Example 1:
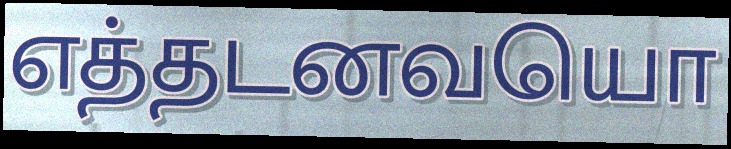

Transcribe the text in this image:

எத்தடனவயொ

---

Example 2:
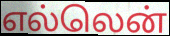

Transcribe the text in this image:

எல்லென்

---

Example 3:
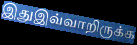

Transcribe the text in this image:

இதுஇவ்வாறிருக்க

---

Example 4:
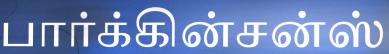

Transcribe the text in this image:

பார்க்கின்சன்ஸ்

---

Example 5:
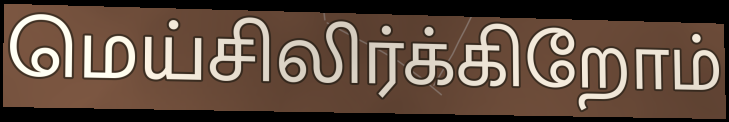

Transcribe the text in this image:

மெய்சிலிர்க்கிறோம்